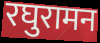
रघुरामन